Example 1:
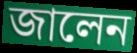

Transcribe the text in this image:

জালেন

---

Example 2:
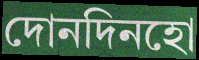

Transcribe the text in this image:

দোনদিনহো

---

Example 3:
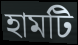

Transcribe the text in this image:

হামটি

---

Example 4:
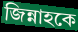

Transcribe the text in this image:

জিন্নাহকে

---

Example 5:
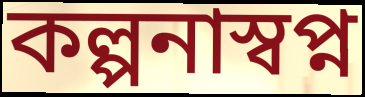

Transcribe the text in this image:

কল্পনাস্বপ্ন